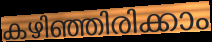
കഴിഞ്ഞിരിക്കാം